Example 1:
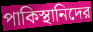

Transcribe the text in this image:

পাকিস্থানিদের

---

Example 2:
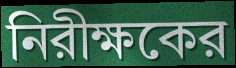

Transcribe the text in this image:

নিরীক্ষকের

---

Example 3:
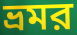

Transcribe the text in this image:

ভ্রমর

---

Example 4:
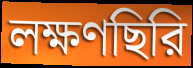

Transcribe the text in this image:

লক্ষণছিরি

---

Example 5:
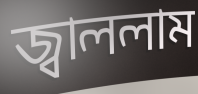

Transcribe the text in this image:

জ্বাললাম